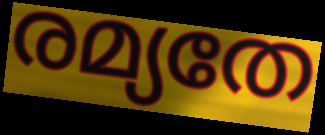
രമ്യതേ